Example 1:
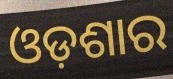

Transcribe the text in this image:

ଓଡ଼ଶାର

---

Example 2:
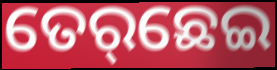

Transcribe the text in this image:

ତେର୍‌ଛେଇ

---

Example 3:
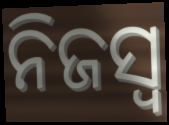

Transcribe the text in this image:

ନିଜସ୍ଵ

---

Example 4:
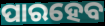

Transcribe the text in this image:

ପାରହେବ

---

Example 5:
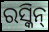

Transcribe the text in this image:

ରସ୍କିନ୍